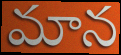
మాన